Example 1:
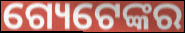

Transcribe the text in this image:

ଗ୍ୟେଟେଙ୍କର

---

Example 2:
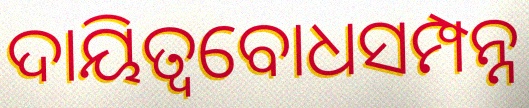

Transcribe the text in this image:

ଦାୟିତ୍ୱବୋଧସମ୍ପନ୍ନ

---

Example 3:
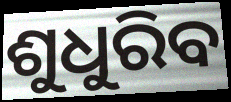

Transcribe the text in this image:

ଶୁଧୁରିବ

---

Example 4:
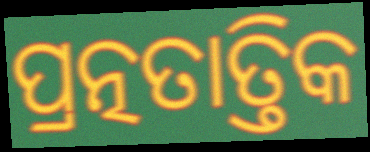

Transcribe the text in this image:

ପ୍ରତ୍ନତାତ୍ତିକ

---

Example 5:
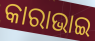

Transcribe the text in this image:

କାରାଭାଇ